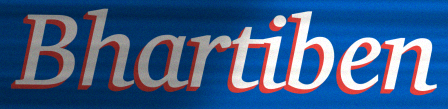
Bhartiben